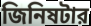
জিনিষটার